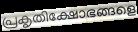
പ്രകൃതിക്ഷോഭങ്ങളെ